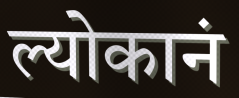
ल्योकानं